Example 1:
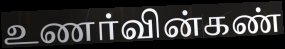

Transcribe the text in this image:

உணர்வின்கண்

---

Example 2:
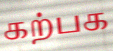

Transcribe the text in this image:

கற்பக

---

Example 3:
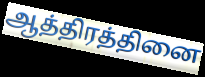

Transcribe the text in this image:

ஆத்திரத்தினை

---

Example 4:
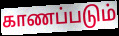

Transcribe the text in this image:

காணப்படும்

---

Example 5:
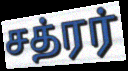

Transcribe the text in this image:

சத்ரர்